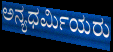
ಅನ್ಯಧರ್ಮಿಯರು